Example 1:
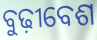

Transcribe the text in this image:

ବୁଢ଼ୀବେଶ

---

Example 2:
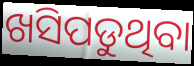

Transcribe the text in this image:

ଖସିପଡୁଥିବା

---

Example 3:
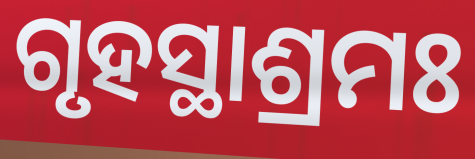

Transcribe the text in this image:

ଗୃହସ୍ଥାଶ୍ରମଃ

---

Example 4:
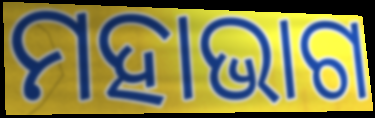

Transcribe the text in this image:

ମହାଭାଗ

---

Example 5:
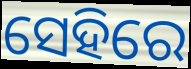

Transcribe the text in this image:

ସେହିରେ